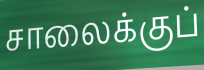
சாலைக்குப்